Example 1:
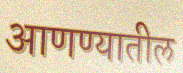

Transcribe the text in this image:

आणण्यातील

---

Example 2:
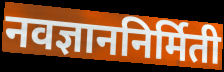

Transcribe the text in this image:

नवज्ञाननिर्मिती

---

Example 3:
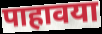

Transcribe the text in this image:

पाहावया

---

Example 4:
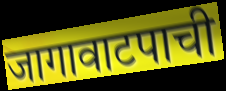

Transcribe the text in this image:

जागावाटपाची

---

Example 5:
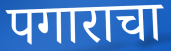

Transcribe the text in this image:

पगाराचा